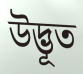
উদ্ভূত